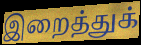
இறைத்துக்